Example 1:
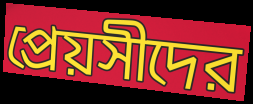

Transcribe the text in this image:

প্রেয়সীদের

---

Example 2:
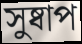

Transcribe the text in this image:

সুষ্বাপ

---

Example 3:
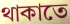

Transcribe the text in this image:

থাকাতে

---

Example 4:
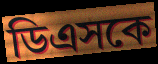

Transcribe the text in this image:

ডিএসকে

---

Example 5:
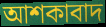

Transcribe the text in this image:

আশকাবাদ